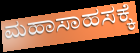
ಮಹಾಸಾಹಸಕ್ಕೆ